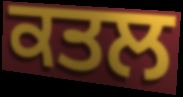
ਕਤਲ